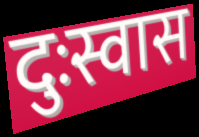
दुःस्वास